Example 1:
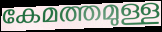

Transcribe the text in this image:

കേമത്തമുള്ള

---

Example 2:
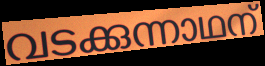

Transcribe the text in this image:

വടക്കുന്നാഥന്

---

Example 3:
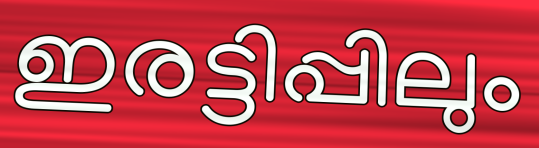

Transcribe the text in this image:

ഇരട്ടിപ്പിലും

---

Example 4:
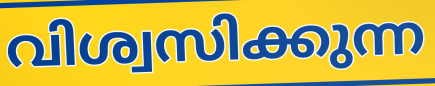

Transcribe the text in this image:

വിശ്വസിക്കുന്ന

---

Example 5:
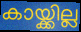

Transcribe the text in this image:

കായ്ക്കില്ല